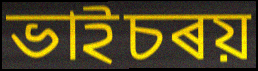
ভাইচৰয়